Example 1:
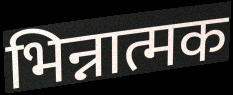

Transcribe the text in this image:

भिन्नात्मक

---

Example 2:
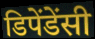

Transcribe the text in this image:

डिपेंडेंसी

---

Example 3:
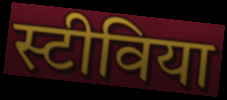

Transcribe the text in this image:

स्‍टीविया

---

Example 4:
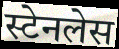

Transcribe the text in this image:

स्टेनलेस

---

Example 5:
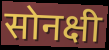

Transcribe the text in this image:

सोनक्षी